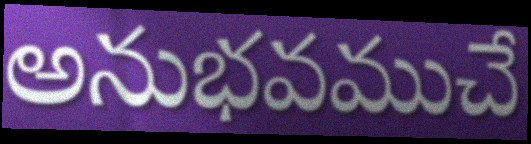
అనుభవముచే